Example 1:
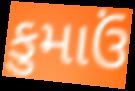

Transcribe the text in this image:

કુમાઉં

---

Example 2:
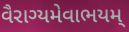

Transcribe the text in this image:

વૈરાગ્યમેવાભયમ્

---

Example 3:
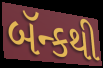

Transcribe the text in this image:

બૅન્કથી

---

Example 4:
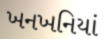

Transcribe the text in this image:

ખનખનિયાં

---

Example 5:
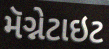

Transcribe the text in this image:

મૅગ્નેટાઇટ